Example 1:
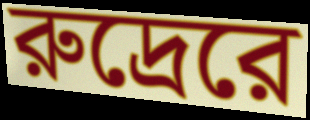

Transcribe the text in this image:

রুদ্রেরে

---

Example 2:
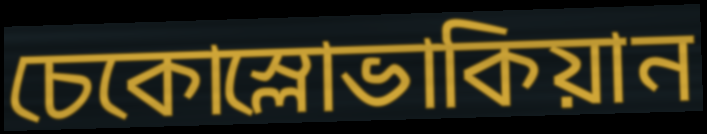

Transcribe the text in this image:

চেকোস্লোভাকিয়ান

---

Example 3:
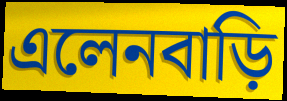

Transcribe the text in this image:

এলেনবাড়ি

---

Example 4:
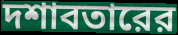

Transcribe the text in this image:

দশাবতারের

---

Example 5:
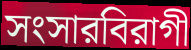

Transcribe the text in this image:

সংসারবিরাগী